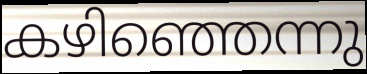
കഴിഞ്ഞെന്നു